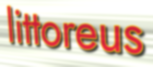
littoreus